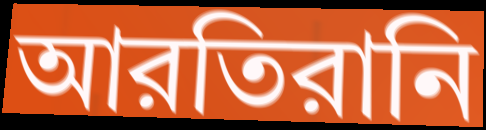
আরতিরানি